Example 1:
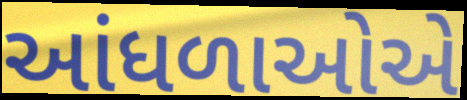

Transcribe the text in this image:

આંધળાઓએ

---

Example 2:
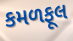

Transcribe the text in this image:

કમળફૂલ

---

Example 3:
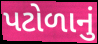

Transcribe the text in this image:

પટોળાનું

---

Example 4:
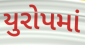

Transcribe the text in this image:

યુરોપમાં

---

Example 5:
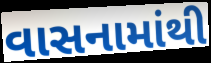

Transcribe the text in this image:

વાસનામાંથી